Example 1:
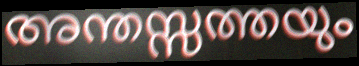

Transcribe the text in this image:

അന്തസ്സത്തയും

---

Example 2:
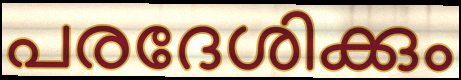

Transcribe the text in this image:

പരദേശിക്കും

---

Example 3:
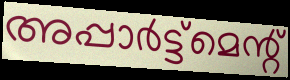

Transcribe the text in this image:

അപ്പാർട്ട്മെന്റ്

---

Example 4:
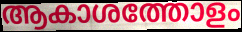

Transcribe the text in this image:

ആകാശത്തോളം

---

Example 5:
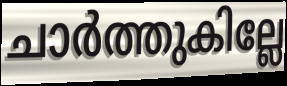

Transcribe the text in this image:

ചാർത്തുകില്ലേ